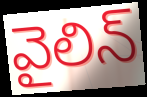
వైలిన్